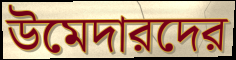
উমেদারদের